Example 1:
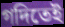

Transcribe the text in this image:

গদিতেই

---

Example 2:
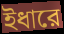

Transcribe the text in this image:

ইধারে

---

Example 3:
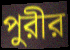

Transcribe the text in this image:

পুরীর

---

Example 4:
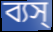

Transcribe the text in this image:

ব্যস্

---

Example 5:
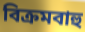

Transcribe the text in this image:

বিক্রমবাহু